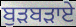
ਬੁੜਬੜਾਏ